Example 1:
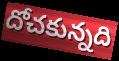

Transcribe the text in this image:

దోచకున్నది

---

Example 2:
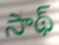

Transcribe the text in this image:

సాథ్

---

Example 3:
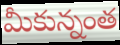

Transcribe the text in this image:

మీకున్నంత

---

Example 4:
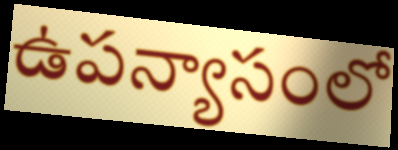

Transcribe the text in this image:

ఉపన్యాసంలో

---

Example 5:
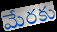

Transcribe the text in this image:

మేరకు